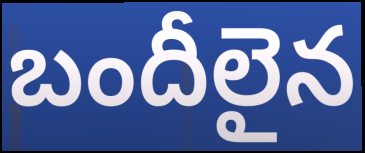
బందీలైన